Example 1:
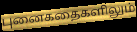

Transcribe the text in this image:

புனைகதைகளிலும்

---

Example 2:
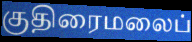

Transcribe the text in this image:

குதிரைமலைப்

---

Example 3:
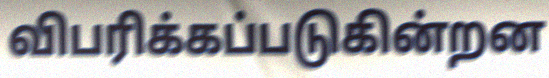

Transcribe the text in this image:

விபரிக்கப்படுகின்றன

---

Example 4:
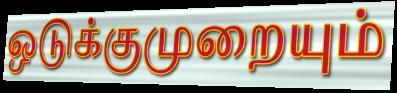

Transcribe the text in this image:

ஒடுக்குமுறையும்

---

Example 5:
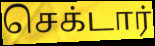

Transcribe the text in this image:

செக்டார்